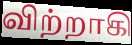
விற்றாகி